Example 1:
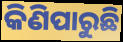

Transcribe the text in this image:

କିଣିପାରୁଛି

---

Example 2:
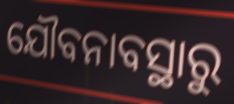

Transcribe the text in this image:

ଯୌବନାବସ୍ଥାରୁ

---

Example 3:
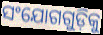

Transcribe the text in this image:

ସଂଯୋଗଗୁଡ଼ିକୁ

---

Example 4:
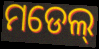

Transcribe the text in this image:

ମଡେଲ୍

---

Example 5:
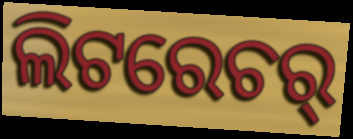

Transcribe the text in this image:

ଲିଟରେଚର୍